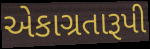
એકાગ્રતારૂપી